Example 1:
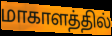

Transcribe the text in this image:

மாகாளத்தில்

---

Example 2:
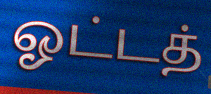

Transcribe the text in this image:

ஓட்டத்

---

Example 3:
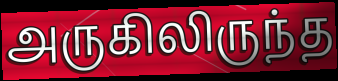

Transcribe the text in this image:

அருகிலிருந்த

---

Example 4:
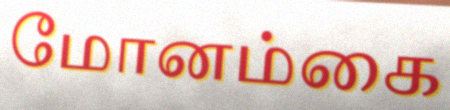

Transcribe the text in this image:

மோனம்கை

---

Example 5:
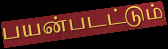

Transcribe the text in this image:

பயன்படட்டும்